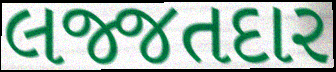
લજ્જતદાર